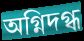
অগ্নিদগ্ধ